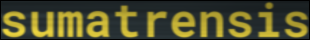
sumatrensis